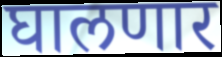
घालणार